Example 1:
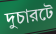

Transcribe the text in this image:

দুচারটে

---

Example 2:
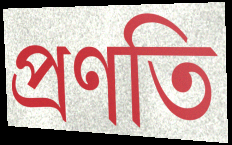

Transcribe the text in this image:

প্রণতি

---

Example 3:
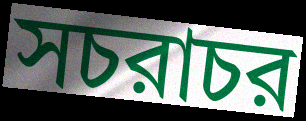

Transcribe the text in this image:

সচরাচর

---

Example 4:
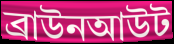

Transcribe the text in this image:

ব্রাউনআউট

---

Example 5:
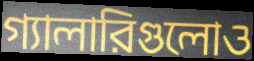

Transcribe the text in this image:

গ্যালারিগুলোও